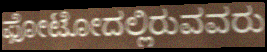
ಫೋಟೋದಲ್ಲಿರುವವರು